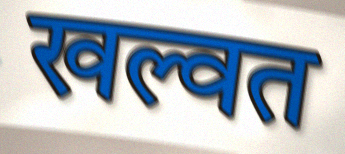
खल्वत